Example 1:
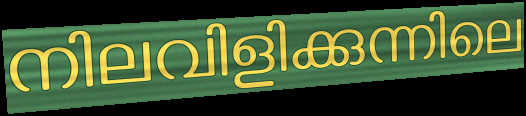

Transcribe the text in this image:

നിലവിളിക്കുന്നിലെ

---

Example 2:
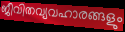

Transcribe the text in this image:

ജീവിതവ്യവഹാരങ്ങളും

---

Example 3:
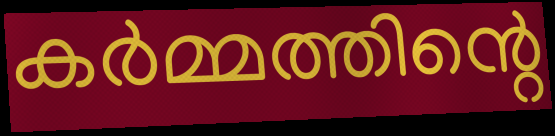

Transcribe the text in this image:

കർമ്മത്തിന്റെ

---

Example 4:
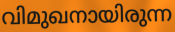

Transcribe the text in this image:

വിമുഖനായിരുന്ന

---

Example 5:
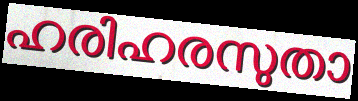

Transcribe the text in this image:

ഹരിഹരസുതാ